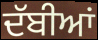
ਦੱਬੀਆਂ